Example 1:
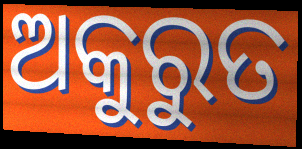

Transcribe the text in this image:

ଅକୁରୁତ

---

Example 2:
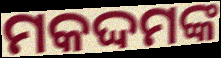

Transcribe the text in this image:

ମକଦ୍ଦମଙ୍କ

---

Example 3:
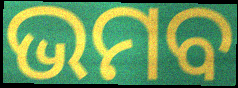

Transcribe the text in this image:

ଭମବ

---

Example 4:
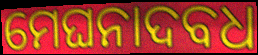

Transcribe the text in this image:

ମେଘନାଦବଧ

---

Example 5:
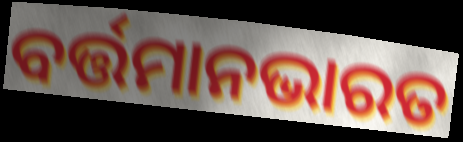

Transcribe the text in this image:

ବର୍ତ୍ତମାନଭାରତ